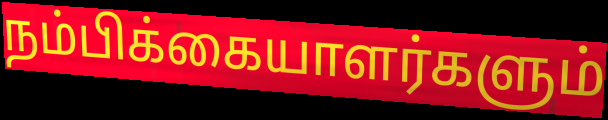
நம்பிக்கையாளர்களும்